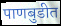
पाणबुडीत